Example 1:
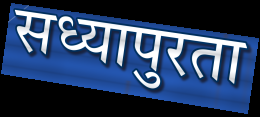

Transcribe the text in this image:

सध्यापुरता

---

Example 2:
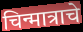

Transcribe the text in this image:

चिन्मात्राचे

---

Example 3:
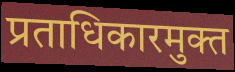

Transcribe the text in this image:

प्रताधिकारमुक्त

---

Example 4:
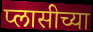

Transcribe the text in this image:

प्लासीच्या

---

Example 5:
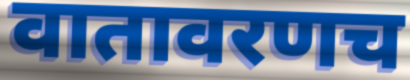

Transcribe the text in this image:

वातावरणच